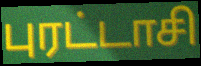
புரட்டாசி